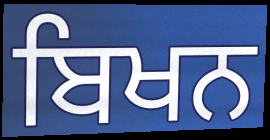
ਬਿਖਨ